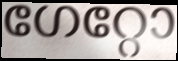
ഗേറ്റോ